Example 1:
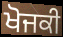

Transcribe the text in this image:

ਖੋਜਕੀ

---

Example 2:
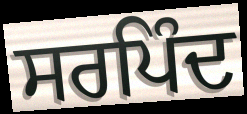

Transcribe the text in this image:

ਸਰਪਿੰਦ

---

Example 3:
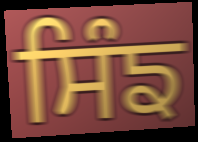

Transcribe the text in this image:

ਸਿੰਙ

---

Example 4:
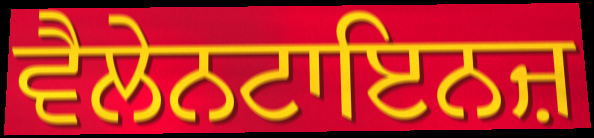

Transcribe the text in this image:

ਵੈਲੇਨਟਾਇਨਜ਼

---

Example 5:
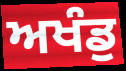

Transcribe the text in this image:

ਅਖੰਡੁ